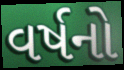
વર્ષનો